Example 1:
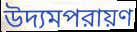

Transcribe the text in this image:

উদ্যমপরায়ণ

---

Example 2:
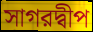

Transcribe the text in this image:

সাগরদ্বীপ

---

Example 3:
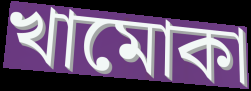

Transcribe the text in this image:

খামোকা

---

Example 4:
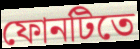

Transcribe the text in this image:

ফোনটিতে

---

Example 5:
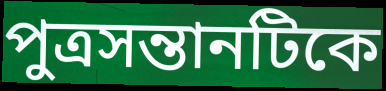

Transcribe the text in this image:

পুত্রসন্তানটিকে